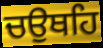
ਚਉਥਹਿ